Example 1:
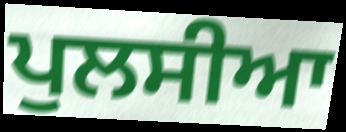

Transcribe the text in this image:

ਪੁਲਸੀਆ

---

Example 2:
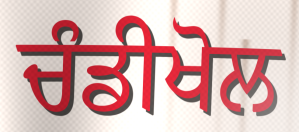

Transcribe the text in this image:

ਚੰਡੀਖੋਲ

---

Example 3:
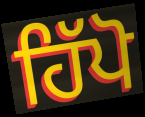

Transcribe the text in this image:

ਹਿੱਪੋ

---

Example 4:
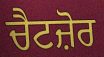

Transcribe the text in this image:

ਚੈਟਜ਼ੋਰ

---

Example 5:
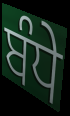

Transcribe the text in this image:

ਬੰਧੇ